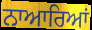
ਨਾਆਰਿਆਂ